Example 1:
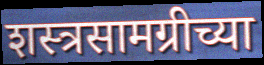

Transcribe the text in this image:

शस्त्रसामग्रीच्या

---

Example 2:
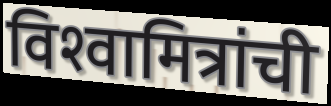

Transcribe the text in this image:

विश्वामित्रांची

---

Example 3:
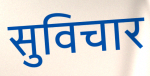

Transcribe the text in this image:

सुविचार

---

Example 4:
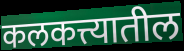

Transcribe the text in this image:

कलकत्त्यातील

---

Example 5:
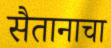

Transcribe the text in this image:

सैतानाचा